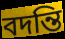
বদন্তি